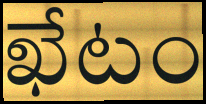
ఖేటం